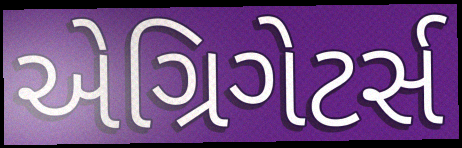
એગ્રિગેટર્સ